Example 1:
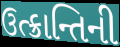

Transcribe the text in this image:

ઉત્ક્રાન્તિની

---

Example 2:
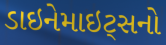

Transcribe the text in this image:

ડાઇનેમાઇટ્સનો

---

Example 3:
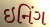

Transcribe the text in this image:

ઇનિંગ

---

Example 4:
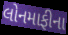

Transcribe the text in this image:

લોનમાફીના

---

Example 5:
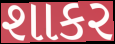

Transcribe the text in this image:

શાકર